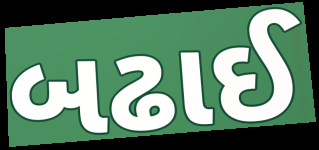
બઢાઈ